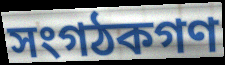
সংগঠকগণ